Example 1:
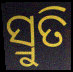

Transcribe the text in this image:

ସ୍ରୁତି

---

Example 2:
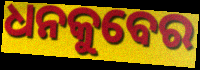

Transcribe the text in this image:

ଧନକୁବେର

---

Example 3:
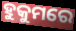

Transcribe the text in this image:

ହୁକୁମରେ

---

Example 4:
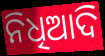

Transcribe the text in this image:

ନିଧିଆଦି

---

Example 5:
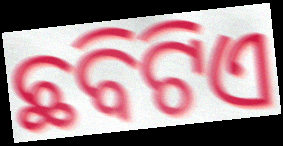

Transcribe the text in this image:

ଛବିଟିଏ